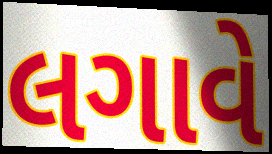
લગાવે